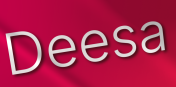
Deesa